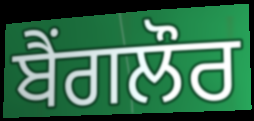
ਬੈੰਗਲੌਰ